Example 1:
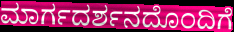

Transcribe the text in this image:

ಮಾರ್ಗದರ್ಶನದೊಂದಿಗೆ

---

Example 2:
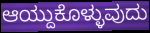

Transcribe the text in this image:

ಆಯ್ದುಕೊಳ್ಳುವುದು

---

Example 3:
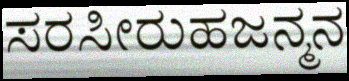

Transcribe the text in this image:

ಸರಸೀರುಹಜನ್ಮನ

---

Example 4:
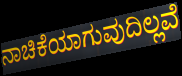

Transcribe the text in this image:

ನಾಚಿಕೆಯಾಗುವುದಿಲ್ಲವೆ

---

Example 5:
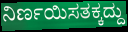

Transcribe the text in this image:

ನಿರ್ಣಯಿಸತಕ್ಕದ್ದು